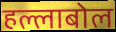
हल्लाबोल